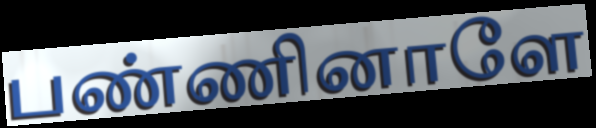
பண்ணினாளே